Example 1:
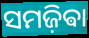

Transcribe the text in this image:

ସମଜ଼ିଵା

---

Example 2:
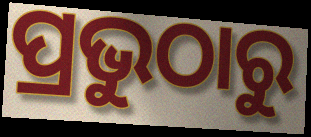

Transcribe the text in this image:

ପ୍ରଭୁଠାରୁ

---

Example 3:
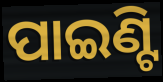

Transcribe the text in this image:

ପାଇଣ୍ଟି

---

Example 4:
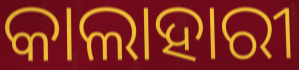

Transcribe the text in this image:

କାଲାହାରୀ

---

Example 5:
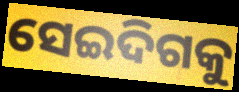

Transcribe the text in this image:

ସେଇଦିଗକୁ